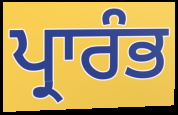
ਪ੍ਰਾਰੰਭ